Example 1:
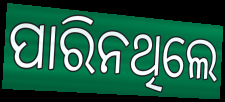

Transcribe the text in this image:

ପାରିନଥିଲେ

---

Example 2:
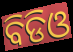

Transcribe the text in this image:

ବିଡିଓ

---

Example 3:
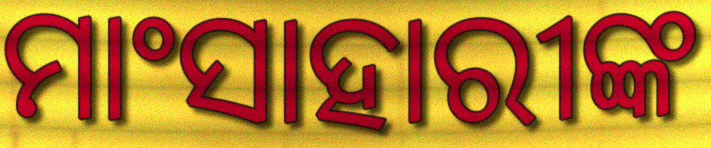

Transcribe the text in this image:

ମାଂସାହାରୀଙ୍କ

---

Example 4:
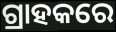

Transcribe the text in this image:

ଗ୍ରାହକରେ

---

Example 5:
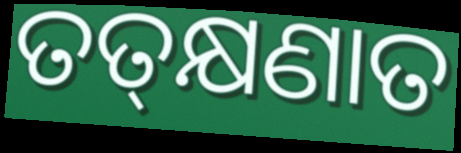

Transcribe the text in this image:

ତତ୍‍କ୍ଷଣାତ